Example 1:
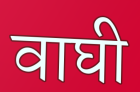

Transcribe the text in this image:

वाघी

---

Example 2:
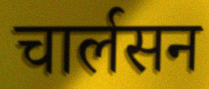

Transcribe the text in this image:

चार्लसन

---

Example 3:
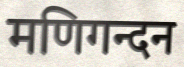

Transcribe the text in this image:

मणिगन्दन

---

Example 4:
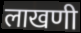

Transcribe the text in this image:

लाखणी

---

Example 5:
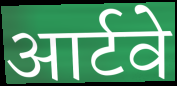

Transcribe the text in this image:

आर्टवे